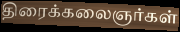
திரைக்கலைஞர்கள்